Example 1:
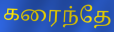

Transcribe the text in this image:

கரைந்தே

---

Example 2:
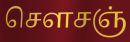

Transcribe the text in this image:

செளசஞ்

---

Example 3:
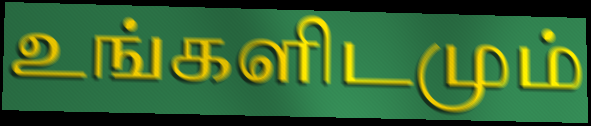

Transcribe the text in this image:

உங்களிடமும்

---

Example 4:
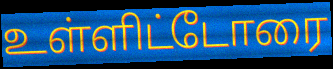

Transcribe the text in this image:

உள்ளிட்டோரை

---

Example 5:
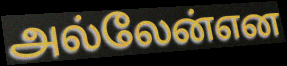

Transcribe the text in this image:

அல்லேன்என